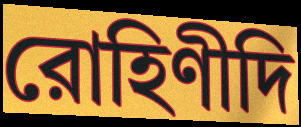
রোহিণীদি